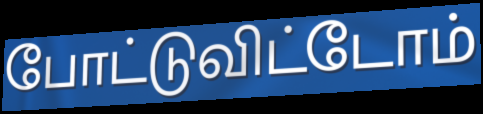
போட்டுவிட்டோம்